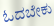
ಓದಬೇಕು